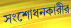
সংশোধনকারীর